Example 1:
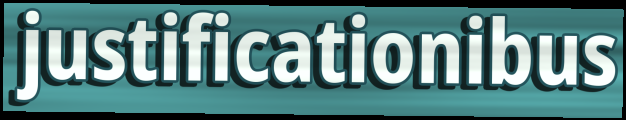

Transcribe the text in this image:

justificationibus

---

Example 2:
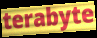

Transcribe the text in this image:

terabyte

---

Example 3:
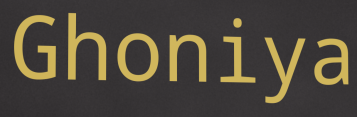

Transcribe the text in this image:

Ghoniya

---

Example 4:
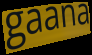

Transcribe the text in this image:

gaana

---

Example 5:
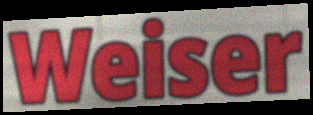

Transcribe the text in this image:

Weiser